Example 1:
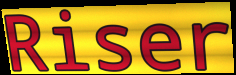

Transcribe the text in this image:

Riser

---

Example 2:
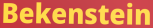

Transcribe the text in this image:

Bekenstein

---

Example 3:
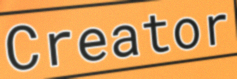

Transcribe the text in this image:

Creator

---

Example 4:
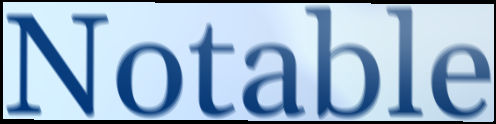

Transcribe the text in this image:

Notable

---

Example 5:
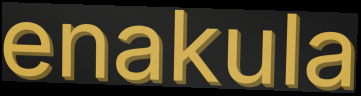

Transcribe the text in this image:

enakula